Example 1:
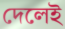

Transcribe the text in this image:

দেলেই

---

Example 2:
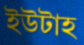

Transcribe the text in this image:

ইউটাহ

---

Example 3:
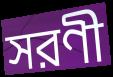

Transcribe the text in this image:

সরণী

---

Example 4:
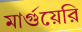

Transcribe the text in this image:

মার্গুয়েরি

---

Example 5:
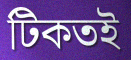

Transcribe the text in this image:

টিকতই